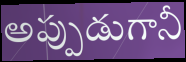
అప్పుడుగానీ